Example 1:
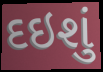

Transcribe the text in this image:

દઇશું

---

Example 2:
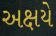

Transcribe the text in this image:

અક્ષયે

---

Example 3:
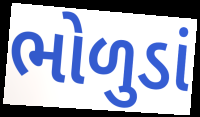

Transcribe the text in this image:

ભોળુડાં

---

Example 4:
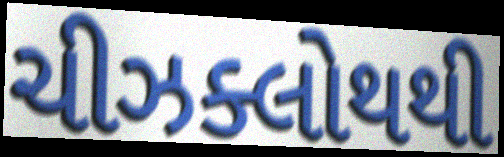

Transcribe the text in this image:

ચીઝક્લોથથી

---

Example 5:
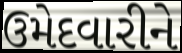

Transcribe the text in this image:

ઉમેદવારીને